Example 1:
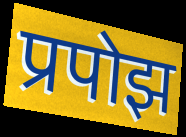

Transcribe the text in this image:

प्रपोझ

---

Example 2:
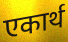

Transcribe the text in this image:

एकार्थ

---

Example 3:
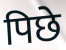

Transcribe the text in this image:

पिछे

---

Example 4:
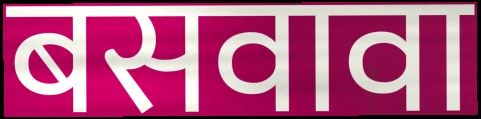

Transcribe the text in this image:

बसवावा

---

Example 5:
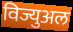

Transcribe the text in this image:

विज्युअल